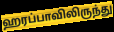
ஹரப்பாவிலிருந்து